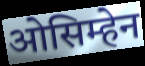
ओसिम्हेन